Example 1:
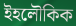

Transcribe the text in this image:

ইহলৌকিক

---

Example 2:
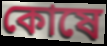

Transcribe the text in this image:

কোষে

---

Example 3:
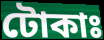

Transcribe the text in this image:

টোকাঃ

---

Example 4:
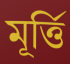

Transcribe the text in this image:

মূৰ্ত্তি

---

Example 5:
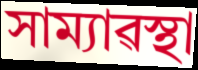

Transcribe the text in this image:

সাম্যাৱস্থা